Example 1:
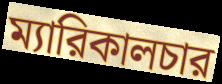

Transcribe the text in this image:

ম্যারিকালচার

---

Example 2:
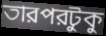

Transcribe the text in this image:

তারপরটুকু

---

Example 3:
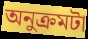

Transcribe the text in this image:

অনুক্রমটা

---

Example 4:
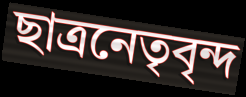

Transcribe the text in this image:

ছাত্রনেতৃবৃন্দ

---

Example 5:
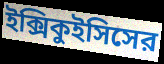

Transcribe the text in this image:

ইক্সিকুইসিসের